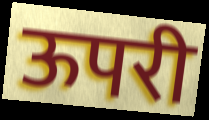
ऊपरी